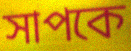
সাপকে